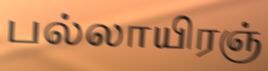
பல்லாயிரஞ்